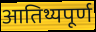
आतिथ्यपूर्ण